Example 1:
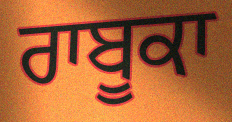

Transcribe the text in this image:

ਰਾਬੂਕਾ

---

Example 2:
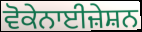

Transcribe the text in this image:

ਵੋਕੇਨਾਈਜ਼ੇਸ਼ਨ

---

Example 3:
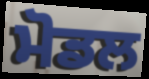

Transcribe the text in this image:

ਮੋਡਲ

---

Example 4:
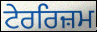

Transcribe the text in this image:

ਟੇਰਰਿਜ਼ਮ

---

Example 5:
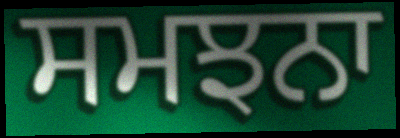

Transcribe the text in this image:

ਸਮਝਨਾ